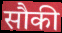
सौकी